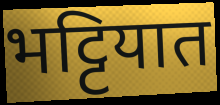
भट्टियात